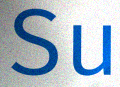
Su